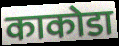
काकोडा